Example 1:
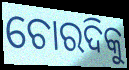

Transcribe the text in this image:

ଚୋରଦିକୁ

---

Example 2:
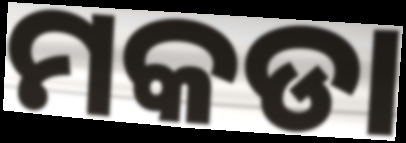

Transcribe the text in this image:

ମକଡା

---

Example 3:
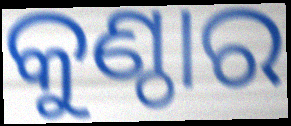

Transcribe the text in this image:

କୁଣ୍ଠାର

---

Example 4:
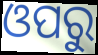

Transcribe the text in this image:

ଓପରୁ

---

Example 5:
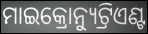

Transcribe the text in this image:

ମାଇକ୍ରୋନ୍ୟୁଟ୍ରିଏଣ୍ଟ